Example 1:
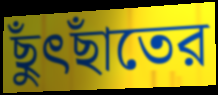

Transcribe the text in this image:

ছুঁৎছাঁতের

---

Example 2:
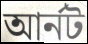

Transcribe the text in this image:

আর্নট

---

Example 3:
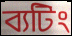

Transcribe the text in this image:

ব্যটিং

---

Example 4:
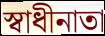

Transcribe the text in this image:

স্বাধীনাতা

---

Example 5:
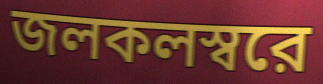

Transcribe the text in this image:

জলকলস্বরে